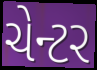
ચેન્ટર